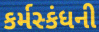
કર્મસ્કંધની